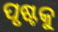
ପୃଷ୍ଟକୁ